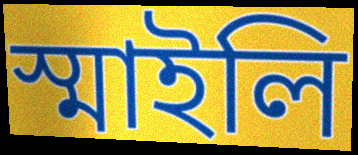
স্মাইলি